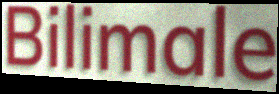
Bilimale